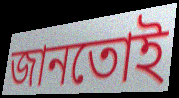
জানতোই